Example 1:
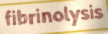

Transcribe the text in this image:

fibrinolysis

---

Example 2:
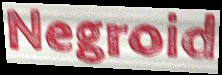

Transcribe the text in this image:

Negroid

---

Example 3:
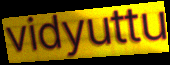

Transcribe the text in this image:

vidyuttu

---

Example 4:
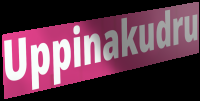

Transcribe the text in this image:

Uppinakudru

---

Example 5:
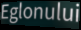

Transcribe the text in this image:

Eglonului